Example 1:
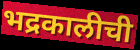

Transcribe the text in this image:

भद्रकालीची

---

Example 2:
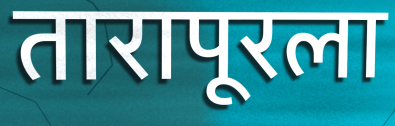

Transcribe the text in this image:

तारापूरला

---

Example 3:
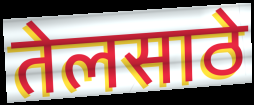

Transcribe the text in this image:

तेलसाठे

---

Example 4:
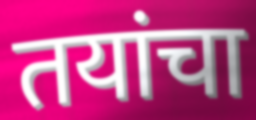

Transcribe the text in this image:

तयांचा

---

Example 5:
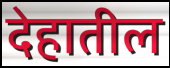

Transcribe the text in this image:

देहातील